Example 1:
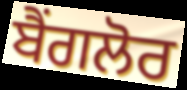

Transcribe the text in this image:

ਬੈਂਗਲੋਰ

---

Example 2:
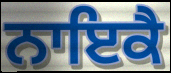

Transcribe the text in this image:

ਨਾਇਕੈ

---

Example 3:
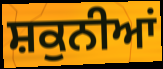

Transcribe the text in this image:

ਸ਼ਕੁਨੀਆਂ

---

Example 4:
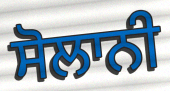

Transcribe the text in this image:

ਸੋਲਾਨੀ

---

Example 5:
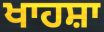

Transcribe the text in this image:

ਖਾਹਸ਼ਾ